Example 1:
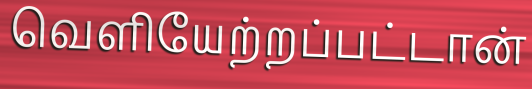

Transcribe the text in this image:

வெளியேற்றப்பட்டான்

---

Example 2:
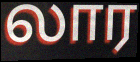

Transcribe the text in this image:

லார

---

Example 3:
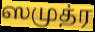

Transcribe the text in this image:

ஸமுத்ர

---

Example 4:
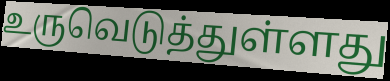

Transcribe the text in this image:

உருவெடுத்துள்ளது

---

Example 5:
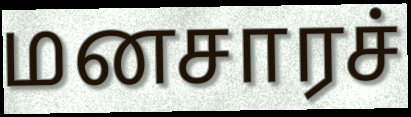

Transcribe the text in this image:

மனசாரச்